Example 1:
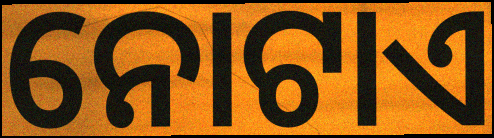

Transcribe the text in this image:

ନୋଟାଏ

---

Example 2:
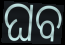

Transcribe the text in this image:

ଘବ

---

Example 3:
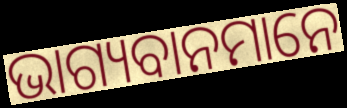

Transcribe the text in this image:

ଭାଗ୍ୟବାନମାନେ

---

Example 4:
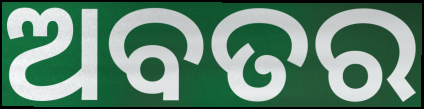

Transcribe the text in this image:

ଅବତର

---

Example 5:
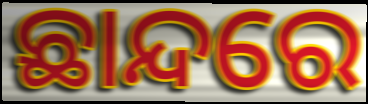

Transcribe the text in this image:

ଛାନ୍ଦରେ